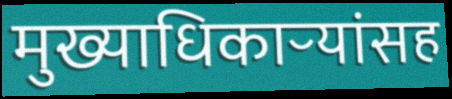
मुख्याधिकाऱ्यांसह